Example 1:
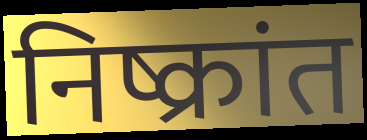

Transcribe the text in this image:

निष्क्रांत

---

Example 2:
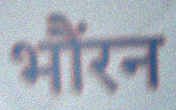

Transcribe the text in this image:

भौंरन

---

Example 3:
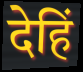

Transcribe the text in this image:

देहिं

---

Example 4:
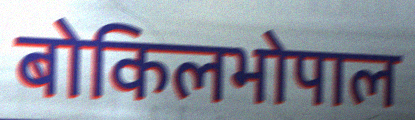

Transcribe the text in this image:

बोकिलभोपाल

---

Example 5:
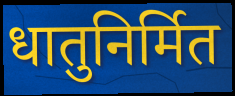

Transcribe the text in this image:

धातुनिर्मित